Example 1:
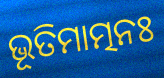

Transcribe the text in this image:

ଭୂତିମାତ୍ମନଃ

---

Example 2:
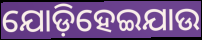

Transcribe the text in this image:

ଯୋଡ଼ିହେଇଯାଉ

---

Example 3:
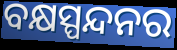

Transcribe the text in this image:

ବକ୍ଷସ୍ପନ୍ଦନର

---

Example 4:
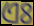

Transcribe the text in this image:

ଏଃ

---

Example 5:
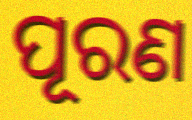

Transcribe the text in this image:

ପୂରଣ